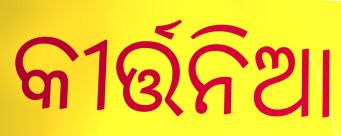
କୀର୍ତ୍ତନିଆ